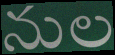
నుల